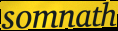
somnath